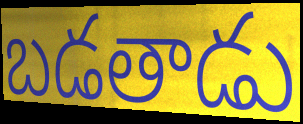
బడతాడు